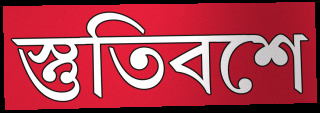
স্তুতিবশে